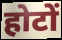
होटों